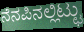
ನೆನಪಿನಲ್ಲಿಟ್ಟು